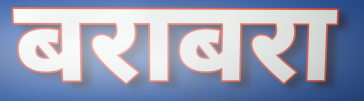
बराबरा